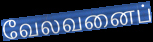
வேலவனைப்